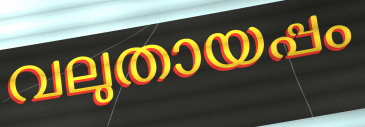
വലുതായപ്പം